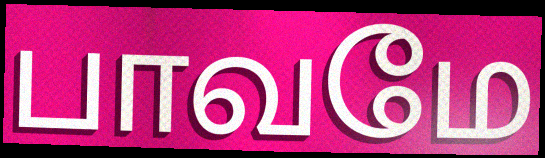
பாவமே